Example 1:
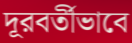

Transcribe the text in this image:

দূরবর্তীভাবে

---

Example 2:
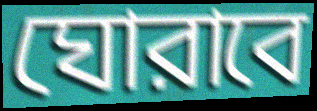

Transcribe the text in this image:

ঘোরাবে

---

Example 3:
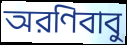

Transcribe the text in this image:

অরণিবাবু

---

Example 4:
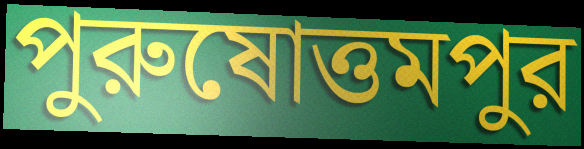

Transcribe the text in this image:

পুরুষোত্তমপুর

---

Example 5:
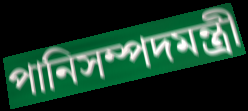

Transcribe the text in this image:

পানিসম্পদমন্ত্রী